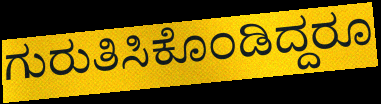
ಗುರುತಿಸಿಕೊಂಡಿದ್ದರೂ